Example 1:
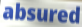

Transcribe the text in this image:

absured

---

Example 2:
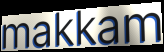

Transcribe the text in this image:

makkam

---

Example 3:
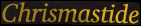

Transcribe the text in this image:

Chrismastide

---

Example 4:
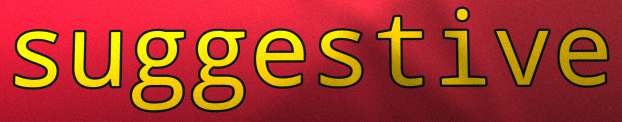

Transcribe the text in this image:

suggestive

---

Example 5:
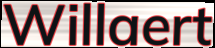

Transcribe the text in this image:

Willaert